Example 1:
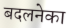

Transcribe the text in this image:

बदलनेका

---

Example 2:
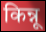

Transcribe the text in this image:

किन्नू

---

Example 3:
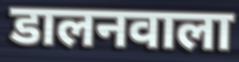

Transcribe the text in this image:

डालनवाला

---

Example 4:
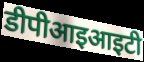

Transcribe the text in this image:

डीपीआइआइटी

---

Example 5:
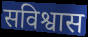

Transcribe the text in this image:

सविश्वास